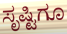
ಸೃಷ್ಟಿಗೂ